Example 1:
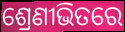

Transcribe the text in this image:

ଶ୍ରେଣୀଭିତରେ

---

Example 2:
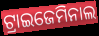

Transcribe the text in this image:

ଟ୍ରାଇଜେମିନାଲ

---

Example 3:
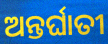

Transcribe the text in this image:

ଅନ୍ତର୍ଘାତୀ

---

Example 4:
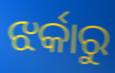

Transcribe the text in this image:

ଝର୍କାରୁ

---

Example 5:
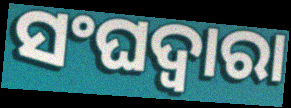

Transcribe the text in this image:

ସଂଘଦ୍ୱାରା